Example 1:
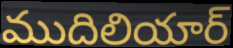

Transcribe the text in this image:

ముదిలియార్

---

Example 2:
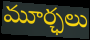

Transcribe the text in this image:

మూర్ఛలు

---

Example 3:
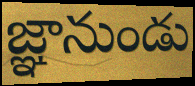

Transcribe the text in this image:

జ్ఞానుండు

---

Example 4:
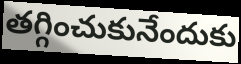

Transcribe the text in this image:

తగ్గించుకునేందుకు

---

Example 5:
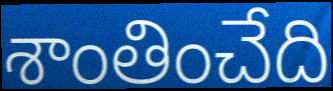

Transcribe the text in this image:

శాంతించేది